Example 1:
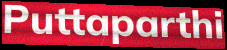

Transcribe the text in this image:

Puttaparthi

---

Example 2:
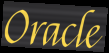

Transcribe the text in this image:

Oracle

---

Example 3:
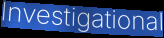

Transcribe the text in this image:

Investigational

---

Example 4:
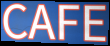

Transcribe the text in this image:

CAFE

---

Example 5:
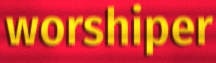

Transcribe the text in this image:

worshiper